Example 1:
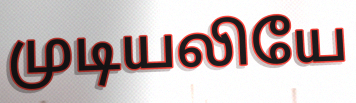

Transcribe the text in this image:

முடியலியே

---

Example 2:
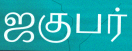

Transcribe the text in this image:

ஜகுபர்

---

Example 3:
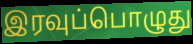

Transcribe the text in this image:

இரவுப்பொழுது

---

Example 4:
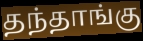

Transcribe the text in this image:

தந்தாங்கு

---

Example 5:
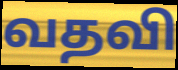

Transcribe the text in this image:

வதவி